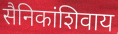
सैनिकांशिवाय